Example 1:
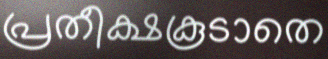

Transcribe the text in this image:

പ്രതീക്ഷകൂടാതെ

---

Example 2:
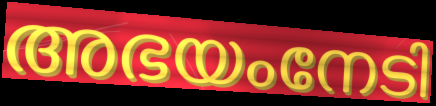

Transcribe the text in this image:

അഭയംനേടി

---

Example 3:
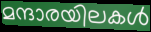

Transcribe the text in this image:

മന്ദാരയിലകൾ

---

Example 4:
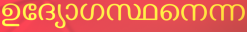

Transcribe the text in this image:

ഉദ്യോഗസ്ഥനെന്ന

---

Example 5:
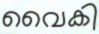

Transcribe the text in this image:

വൈകി